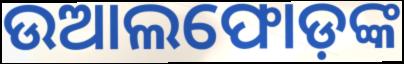
ଉଆଲଫୋଡ଼ଙ୍କ